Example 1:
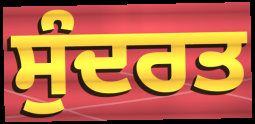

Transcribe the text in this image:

ਸੁੰਦਰਤ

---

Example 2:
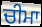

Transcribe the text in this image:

ਚੀਮਾ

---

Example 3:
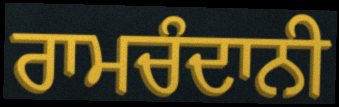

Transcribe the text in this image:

ਰਾਮਚੰਦਾਨੀ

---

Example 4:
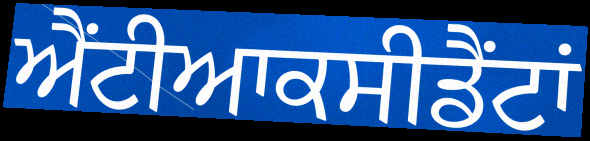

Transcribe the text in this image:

ਐਂਟੀਆਕਸੀਡੈਂਟਾਂ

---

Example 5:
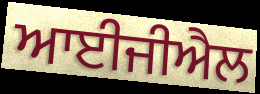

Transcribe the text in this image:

ਆਈਜੀਐਲ